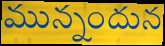
మున్నందున